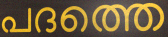
പദത്തെ